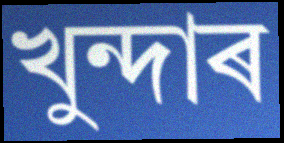
খুন্দাৰ